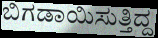
ಬಿಗಡಾಯಿಸುತ್ತಿದ್ದ